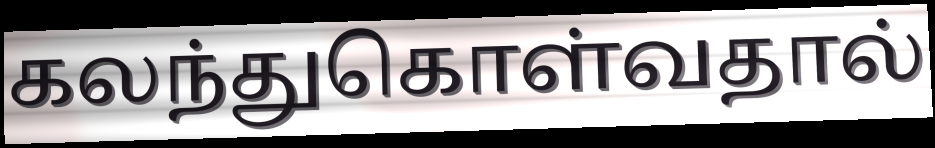
கலந்துகொள்வதால்